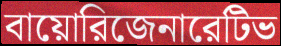
বায়োরিজেনারেটিভ